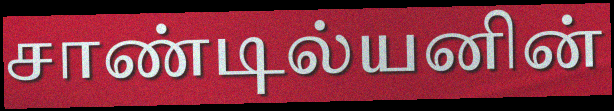
சாண்டில்யனின்